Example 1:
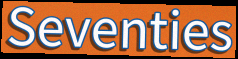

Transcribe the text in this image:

Seventies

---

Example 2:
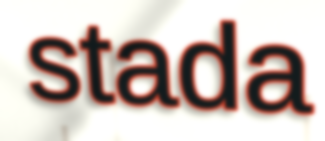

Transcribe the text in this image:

stada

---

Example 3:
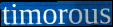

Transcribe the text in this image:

timorous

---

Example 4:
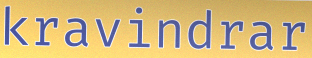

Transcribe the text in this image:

kravindrar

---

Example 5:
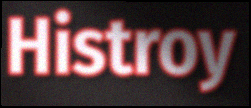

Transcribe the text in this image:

Histroy